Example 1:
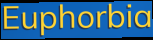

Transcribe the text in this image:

Euphorbia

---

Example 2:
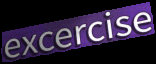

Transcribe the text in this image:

excercise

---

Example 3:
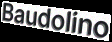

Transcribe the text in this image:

Baudolino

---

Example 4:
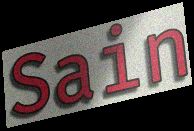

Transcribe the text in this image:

Sain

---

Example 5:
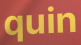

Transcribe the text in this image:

quin